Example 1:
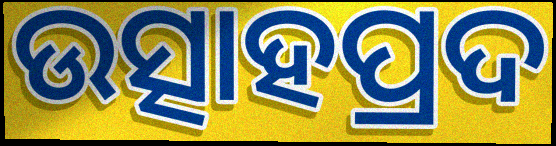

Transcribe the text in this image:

ଉତ୍ସାହପ୍ରଦ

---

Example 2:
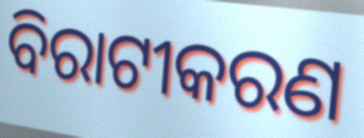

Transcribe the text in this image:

ବିରାଟୀକରଣ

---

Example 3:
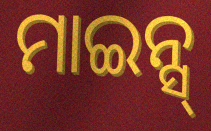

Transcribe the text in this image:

ମାଇନ୍ସ୍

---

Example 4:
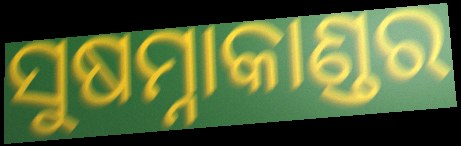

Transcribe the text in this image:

ସୁଷମ୍ନାକାଣ୍ଡର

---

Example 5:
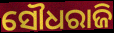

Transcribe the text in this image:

ସୌଧରାଜି